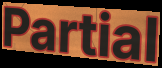
Partial